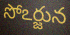
సోఽర్జున